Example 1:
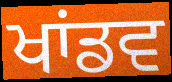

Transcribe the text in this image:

ਖਾਂਡਵ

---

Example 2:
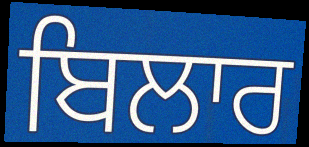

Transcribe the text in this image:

ਬਿਲਾਰ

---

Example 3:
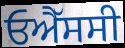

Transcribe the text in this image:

ਓਐੱਸਸੀ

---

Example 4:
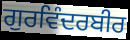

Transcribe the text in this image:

ਗੁਰਵਿੰਦਰਬੀਰ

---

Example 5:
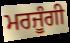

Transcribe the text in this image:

ਮਰਜੂੰਗੀ